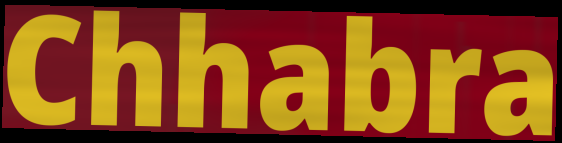
Chhabra